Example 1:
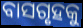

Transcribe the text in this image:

ବାସଗୃହକୁ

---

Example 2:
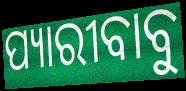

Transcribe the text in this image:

ପ୍ୟାରୀବାବୁ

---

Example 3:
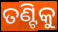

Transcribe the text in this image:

ତଣ୍ଟିକୁ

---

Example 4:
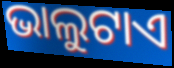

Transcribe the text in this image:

ଭାଲୁଟାଏ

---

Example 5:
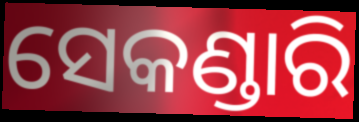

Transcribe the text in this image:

ସେକଣ୍ଡାରି